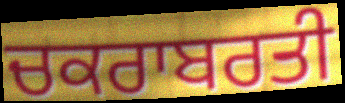
ਚਕਰਾਬਰਤੀ